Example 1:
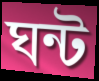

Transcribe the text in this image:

ঘন্ট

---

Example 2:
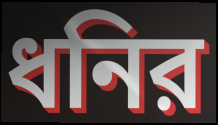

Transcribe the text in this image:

ধনির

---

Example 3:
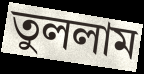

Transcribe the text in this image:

তুললাম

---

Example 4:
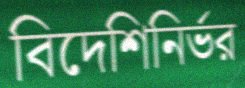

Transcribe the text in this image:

বিদেশিনির্ভর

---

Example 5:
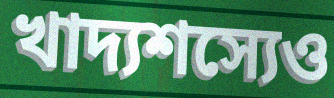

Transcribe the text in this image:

খাদ্যশস্যেও